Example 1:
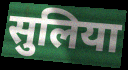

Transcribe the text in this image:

सुलिया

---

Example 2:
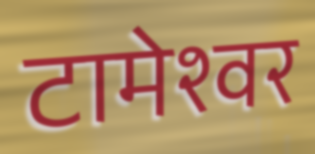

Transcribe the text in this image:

टामेश्वर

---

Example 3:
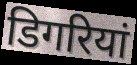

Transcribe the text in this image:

डिगरियां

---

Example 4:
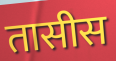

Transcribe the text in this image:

तासीस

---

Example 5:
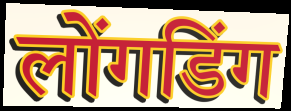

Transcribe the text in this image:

लोंगडिंग